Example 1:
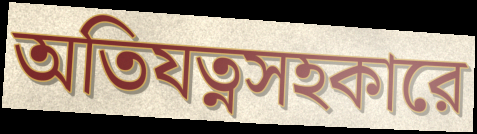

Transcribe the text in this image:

অতিযত্নসহকারে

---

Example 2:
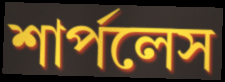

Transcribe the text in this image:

শার্পলেস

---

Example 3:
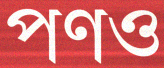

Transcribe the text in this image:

পণও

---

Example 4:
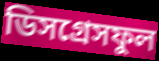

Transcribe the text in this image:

ডিসগ্রেসফুল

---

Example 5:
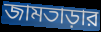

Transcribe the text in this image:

জামতাড়ার